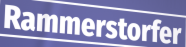
Rammerstorfer